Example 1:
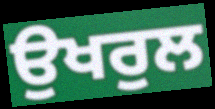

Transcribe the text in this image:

ਉਖਰੁਲ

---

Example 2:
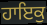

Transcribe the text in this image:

ਹਾਇਕੁ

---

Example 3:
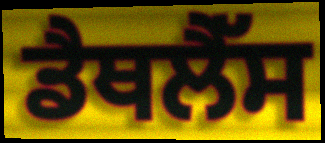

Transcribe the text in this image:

ਡੈਥਲੈੱਸ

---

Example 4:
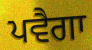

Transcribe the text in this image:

ਪਵੈਗਾ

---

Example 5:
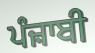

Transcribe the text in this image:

ਪੰਜ਼ਾਬੀ